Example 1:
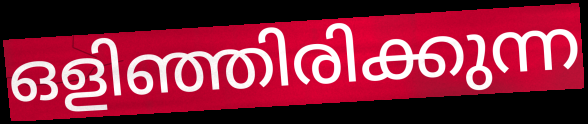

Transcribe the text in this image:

ഒളിഞ്ഞിരിക്കുന്ന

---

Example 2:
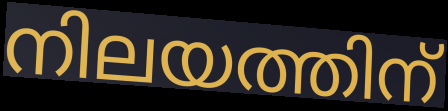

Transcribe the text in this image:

നിലയത്തിന്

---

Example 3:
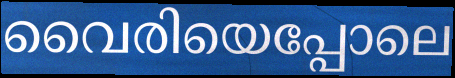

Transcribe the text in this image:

വൈരിയെപ്പോലെ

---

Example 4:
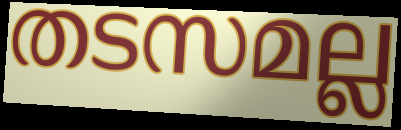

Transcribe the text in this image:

തടസമല്ല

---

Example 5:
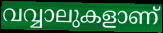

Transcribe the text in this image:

വവ്വാലുകളാണ്